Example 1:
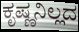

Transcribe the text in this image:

ಕೃಷ್ಣನಿಲ್ಲದ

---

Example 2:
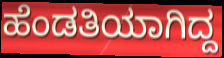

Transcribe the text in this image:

ಹೆಂಡತಿಯಾಗಿದ್ದ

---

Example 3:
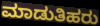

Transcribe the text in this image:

ಮಾಡುತಿಹರು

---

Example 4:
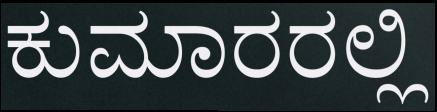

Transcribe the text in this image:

ಕುಮಾರರಲ್ಲಿ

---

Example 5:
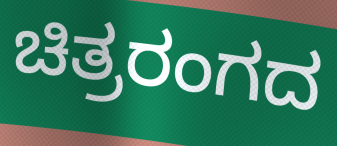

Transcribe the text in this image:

ಚಿತ್ರರಂಗದ